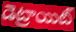
డెట్రాయిట్